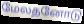
மேலதனோடு